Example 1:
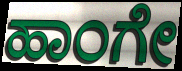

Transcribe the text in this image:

ಹಾಂಗೇ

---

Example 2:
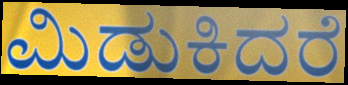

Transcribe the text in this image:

ಮಿಡುಕಿದರೆ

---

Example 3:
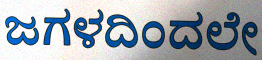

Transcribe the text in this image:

ಜಗಳದಿಂದಲೇ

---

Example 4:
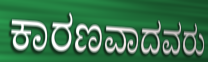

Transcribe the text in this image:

ಕಾರಣವಾದವರು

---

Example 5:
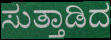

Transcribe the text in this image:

ಸುತ್ತಾಡಿದ